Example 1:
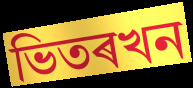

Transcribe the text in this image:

ভিতৰখন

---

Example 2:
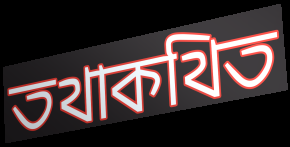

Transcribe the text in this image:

তথাকথিত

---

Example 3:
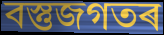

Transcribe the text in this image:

বস্তুজগতৰ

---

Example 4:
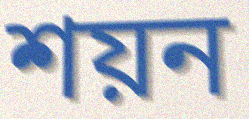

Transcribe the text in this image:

শয়ন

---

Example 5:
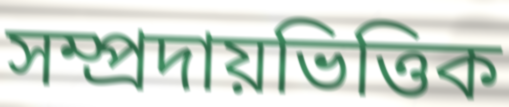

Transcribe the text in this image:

সম্প্ৰদায়ভিত্তিক